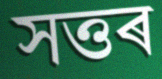
সত্তৰ